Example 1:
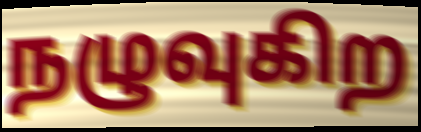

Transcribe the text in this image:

நழுவுகிற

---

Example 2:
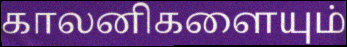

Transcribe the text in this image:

காலனிகளையும்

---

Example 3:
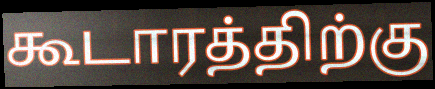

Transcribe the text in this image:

கூடாரத்திற்கு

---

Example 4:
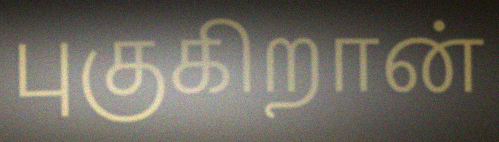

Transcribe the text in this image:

புகுகிறான்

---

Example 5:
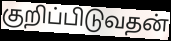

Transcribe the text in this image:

குறிப்பிடுவதன்